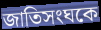
জাতিসংঘকে